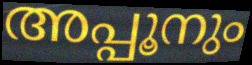
അപ്പൂനും